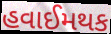
હવાઈમથક